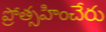
ప్రోత్సహించేరు